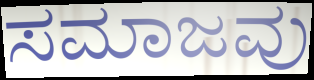
ಸಮಾಜವು